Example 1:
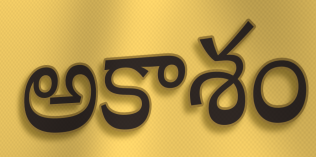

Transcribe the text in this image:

అకాశం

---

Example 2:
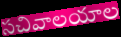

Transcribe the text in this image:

సచివాలయాల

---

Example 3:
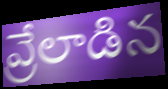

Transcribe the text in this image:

వ్రేలాడిన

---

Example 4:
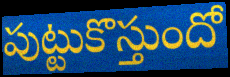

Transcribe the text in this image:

పుట్టుకొస్తుందో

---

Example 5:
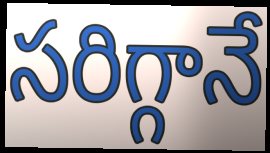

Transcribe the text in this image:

సరిగ్గానే